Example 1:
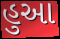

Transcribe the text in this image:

હુઆ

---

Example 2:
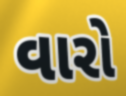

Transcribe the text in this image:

વારો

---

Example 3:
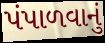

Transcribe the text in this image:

પંપાળવાનું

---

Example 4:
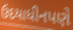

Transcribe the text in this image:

ઉદયાધીનપણે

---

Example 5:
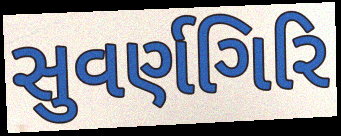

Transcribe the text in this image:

સુવર્ણગિરિ